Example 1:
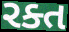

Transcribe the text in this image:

રક્ત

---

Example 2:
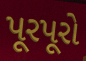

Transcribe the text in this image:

પૂરપૂરો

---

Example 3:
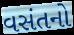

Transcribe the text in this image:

વસંતનો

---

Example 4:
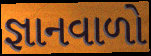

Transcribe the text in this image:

જ્ઞાનવાળો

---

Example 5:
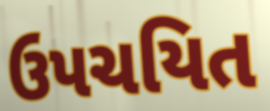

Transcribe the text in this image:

ઉપચયિત